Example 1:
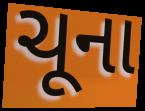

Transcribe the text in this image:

ચૂના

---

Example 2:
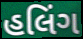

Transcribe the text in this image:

હલિંગ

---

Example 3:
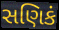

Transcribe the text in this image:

સણિકં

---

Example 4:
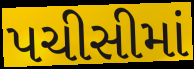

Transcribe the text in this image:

પચીસીમાં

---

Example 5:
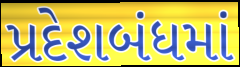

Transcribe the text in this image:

પ્રદેશબંધમાં